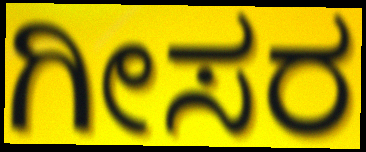
ಗೀಸರ